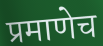
प्रमाणेच